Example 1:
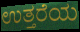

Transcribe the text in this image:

ಉತ್ತರೆಯ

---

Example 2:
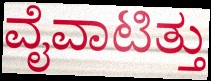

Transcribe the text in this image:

ವೈವಾಟಿತ್ತು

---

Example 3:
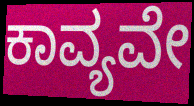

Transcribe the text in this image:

ಕಾವ್ಯವೇ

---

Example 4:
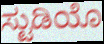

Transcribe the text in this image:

ಸ್ಟುಡಿಯೊ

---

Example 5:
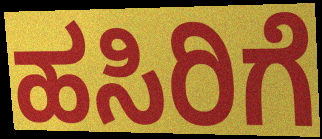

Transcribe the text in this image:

ಹಸಿರಿಗೆ